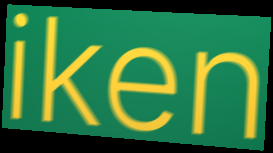
iken